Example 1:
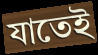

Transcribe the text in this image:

যাতেই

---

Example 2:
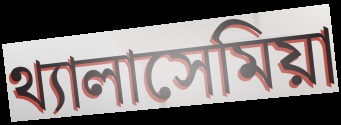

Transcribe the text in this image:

থ্যালাসেমিয়া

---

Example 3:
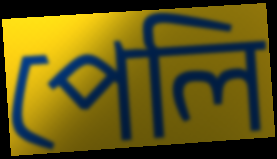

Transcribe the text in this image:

পেলি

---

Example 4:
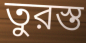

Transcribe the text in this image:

তুরস্ত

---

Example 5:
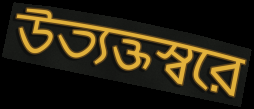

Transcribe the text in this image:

উত্যক্তস্বরে